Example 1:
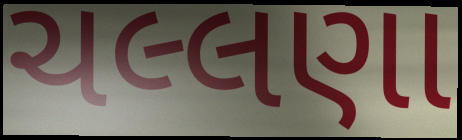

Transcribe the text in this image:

ચલ્લણા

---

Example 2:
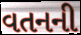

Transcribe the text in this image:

વતનની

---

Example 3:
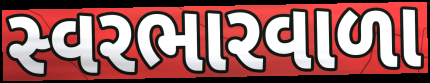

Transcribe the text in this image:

સ્વરભારવાળા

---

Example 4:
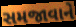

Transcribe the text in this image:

સમજાવાને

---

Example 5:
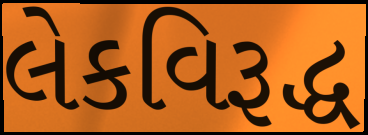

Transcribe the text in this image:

લેકવિરૂદ્ધ